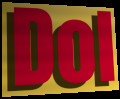
Dol